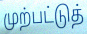
முற்பட்டுத்